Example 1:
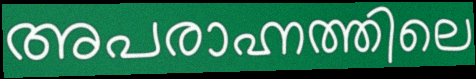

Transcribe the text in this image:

അപരാഹ്നത്തിലെ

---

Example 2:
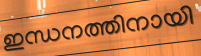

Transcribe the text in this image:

ഇന്ധനത്തിനായി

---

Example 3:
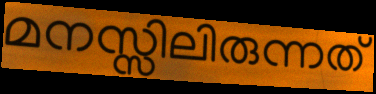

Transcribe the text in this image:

മനസ്സിലിരുന്നത്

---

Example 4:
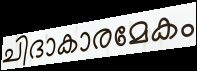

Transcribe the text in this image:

ചിദാകാരമേകം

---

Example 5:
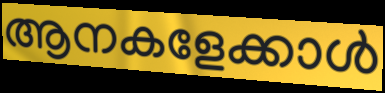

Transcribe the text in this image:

ആനകളേക്കാൾ